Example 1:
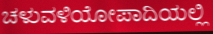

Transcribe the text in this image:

ಚಳುವಳಿಯೋಪಾದಿಯಲ್ಲಿ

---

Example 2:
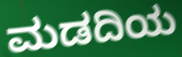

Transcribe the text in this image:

ಮಡದಿಯ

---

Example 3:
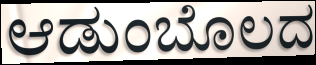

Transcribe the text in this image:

ಆಡುಂಬೊಲದ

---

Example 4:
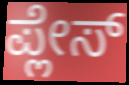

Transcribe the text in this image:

ಪ್ಲೇಸ್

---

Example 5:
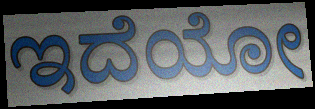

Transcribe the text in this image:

ಇದೆಯೋ